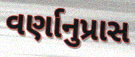
વર્ણાનુપ્રાસ